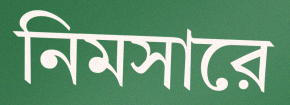
নিমসারে